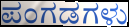
ಪಂಗಡಗಳು